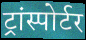
ट्रांस्पोर्टर